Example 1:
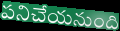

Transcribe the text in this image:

పనిచేయనుంది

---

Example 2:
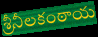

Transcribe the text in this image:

శ్రీనీలకంఠాయ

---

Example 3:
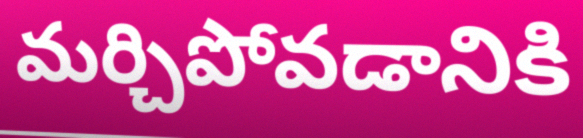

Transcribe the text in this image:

మర్చిపోవడానికి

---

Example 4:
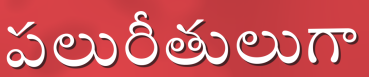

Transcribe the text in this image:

పలురీతులుగా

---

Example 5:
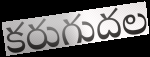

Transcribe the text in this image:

కరుగుదల